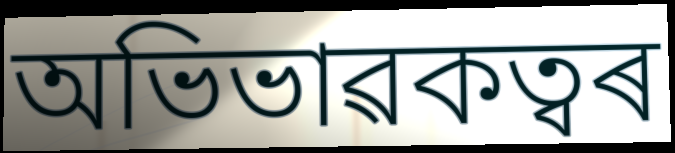
অভিভাৱকত্বৰ